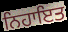
ਨਿਹਾਇਤ